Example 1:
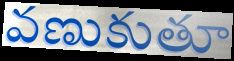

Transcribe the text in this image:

వణుకుతూ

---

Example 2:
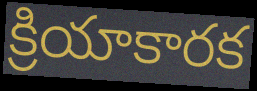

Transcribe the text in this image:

క్రియాకారక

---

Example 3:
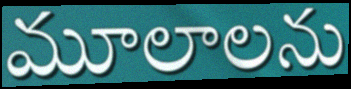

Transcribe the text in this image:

మూలాలను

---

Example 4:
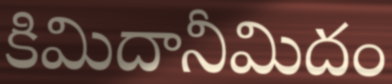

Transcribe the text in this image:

కిమిదానీమిదం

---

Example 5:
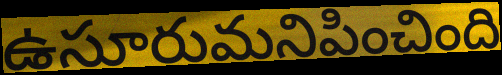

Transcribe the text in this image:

ఉసూరుమనిపించింది